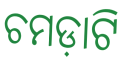
ଚମଡ଼ାଟି